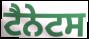
ਟੈਨੇਟਸ